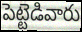
పెట్టెడివారు